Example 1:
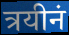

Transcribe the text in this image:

त्रयीनं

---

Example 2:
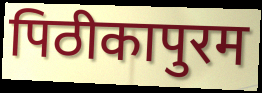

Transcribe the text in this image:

पिठीकापुरम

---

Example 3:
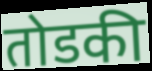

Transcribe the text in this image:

तोडकी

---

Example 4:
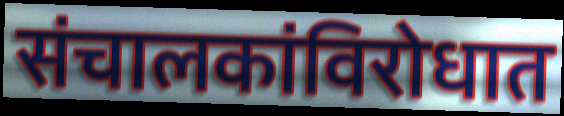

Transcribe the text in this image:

संचालकांविरोधात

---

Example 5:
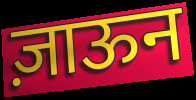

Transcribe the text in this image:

ज़ाऊन